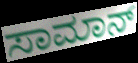
ಸಾಮಾನ್